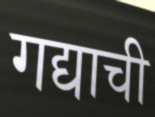
गद्याची